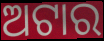
ଅଟାର